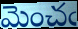
మెంచఁ